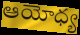
ఆయోధ్య